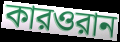
কারওরান